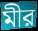
মীর